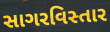
સાગરવિસ્તાર